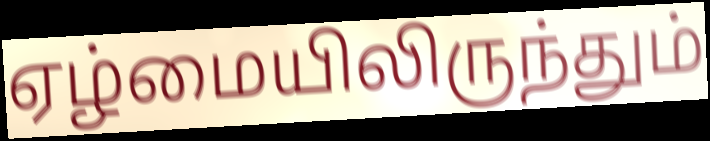
ஏழ்மையிலிருந்தும்